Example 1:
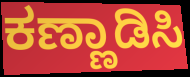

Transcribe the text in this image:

ಕಣ್ಣಾಡಿಸಿ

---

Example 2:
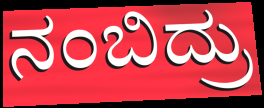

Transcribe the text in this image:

ನಂಬಿದ್ರು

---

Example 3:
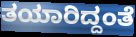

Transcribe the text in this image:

ತಯಾರಿದ್ದಂತೆ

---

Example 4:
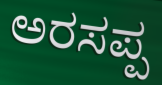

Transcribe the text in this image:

ಅರಸಪ್ಪ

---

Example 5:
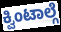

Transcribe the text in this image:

ಕ್ವಿಂಟಾಲ್ಗೆ